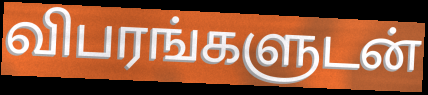
விபரங்களுடன்